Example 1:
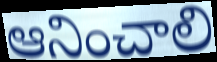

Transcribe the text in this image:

ఆనించాలి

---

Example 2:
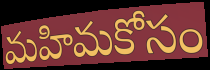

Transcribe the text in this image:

మహిమకోసం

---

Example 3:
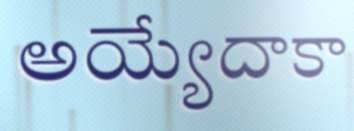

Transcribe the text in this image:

అయ్యేదాకా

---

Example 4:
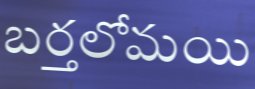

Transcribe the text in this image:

బర్తలోమయి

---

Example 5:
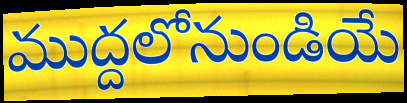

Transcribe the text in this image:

ముద్దలోనుండియే